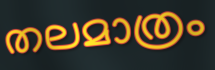
തലമാത്രം